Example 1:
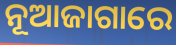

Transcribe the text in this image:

ନୂଆଜାଗାରେ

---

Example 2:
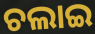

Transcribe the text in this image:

ଚଲାଇ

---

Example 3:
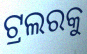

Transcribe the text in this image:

ଟ୍ରଲରକୁ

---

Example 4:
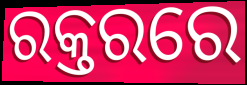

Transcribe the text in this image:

ରକ୍ତରରେ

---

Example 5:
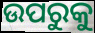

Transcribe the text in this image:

ଉପରୁକୁ